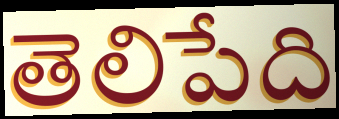
తెలిపేది